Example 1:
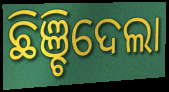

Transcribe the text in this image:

ଛିଞ୍ଚିଦେଲା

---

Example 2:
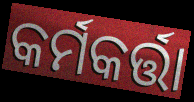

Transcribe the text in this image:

କର୍ମକର୍ତ୍ତା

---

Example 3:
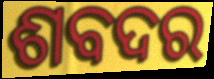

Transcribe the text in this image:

ଶବଦର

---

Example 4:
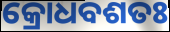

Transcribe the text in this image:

କ୍ରୋଧବଶତଃ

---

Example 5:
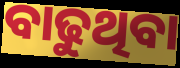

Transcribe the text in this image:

ବାଢୁଥିବା